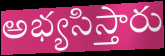
అభ్యసిస్తారు